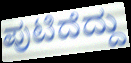
ಪುಟಿದೆದ್ದು